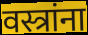
वस्त्रांना